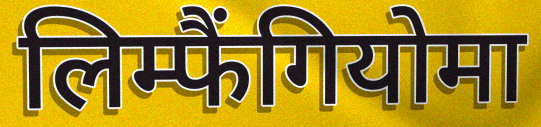
लिम्फैंगियोमा